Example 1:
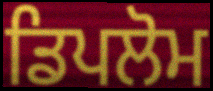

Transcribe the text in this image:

ਡਿਪਲੋਮ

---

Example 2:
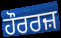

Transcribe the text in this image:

ਹੌਰਰਜ਼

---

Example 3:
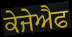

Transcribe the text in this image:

ਕੇਜੇਐਫ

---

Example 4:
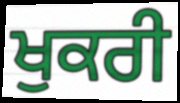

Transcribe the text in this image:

ਖੁਕਰੀ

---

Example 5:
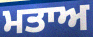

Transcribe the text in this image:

ਮਤਾਅ